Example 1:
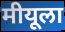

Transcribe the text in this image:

मीयूला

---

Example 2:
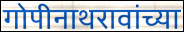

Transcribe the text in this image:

गोपीनाथरावांच्या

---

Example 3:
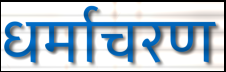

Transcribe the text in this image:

धर्माचरण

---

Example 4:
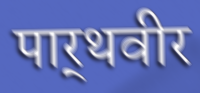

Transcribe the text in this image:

पार्थवीर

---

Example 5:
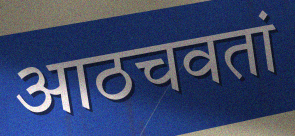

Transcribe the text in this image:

आठचवतां